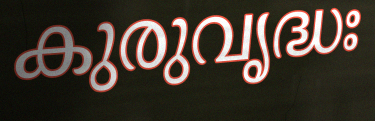
കുരുവൃദ്ധഃ